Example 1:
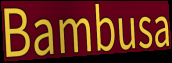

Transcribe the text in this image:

Bambusa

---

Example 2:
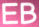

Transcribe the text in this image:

EB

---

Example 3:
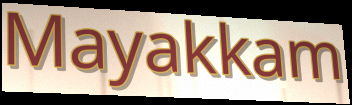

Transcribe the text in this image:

Mayakkam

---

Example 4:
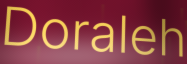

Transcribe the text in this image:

Doraleh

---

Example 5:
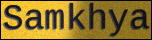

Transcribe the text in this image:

Samkhya